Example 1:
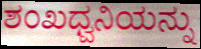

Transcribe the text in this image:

ಶಂಖಧ್ವನಿಯನ್ನು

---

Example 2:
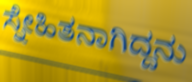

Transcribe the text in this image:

ಸ್ನೇಹಿತನಾಗಿದ್ದನು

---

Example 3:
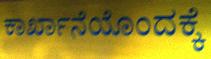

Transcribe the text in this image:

ಕಾರ್ಖಾನೆಯೊಂದಕ್ಕೆ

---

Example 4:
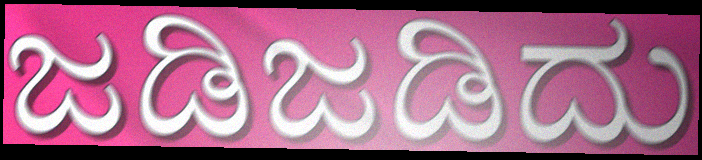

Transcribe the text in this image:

ಜಡಿಜಡಿದು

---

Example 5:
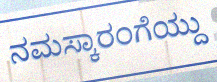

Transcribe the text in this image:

ನಮಸ್ಕಾರಂಗೆಯ್ದು